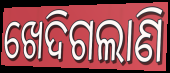
ଖେଦିଗଲାଣି